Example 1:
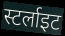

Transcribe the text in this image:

स्टर्लाइट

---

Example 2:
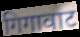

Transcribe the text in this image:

गिगावाट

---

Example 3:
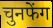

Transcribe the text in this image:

चुनफेंग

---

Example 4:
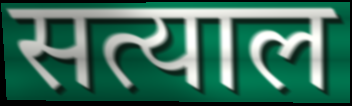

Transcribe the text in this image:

सत्याल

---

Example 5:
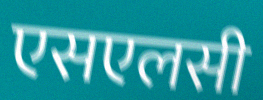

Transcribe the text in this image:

एसएलसी